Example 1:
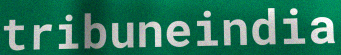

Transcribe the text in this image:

tribuneindia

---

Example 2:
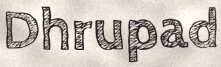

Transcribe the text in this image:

Dhrupad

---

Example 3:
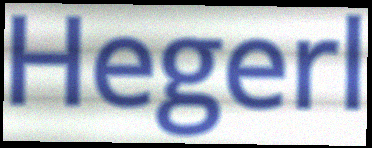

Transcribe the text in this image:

Hegerl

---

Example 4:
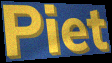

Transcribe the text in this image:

Piet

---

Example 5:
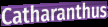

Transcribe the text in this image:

Catharanthus